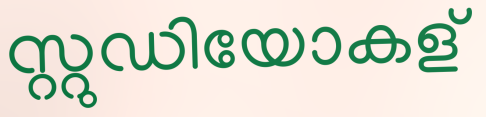
സ്റ്റുഡിയോകള്